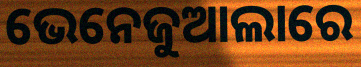
ଭେନେଜୁଆଲାରେ